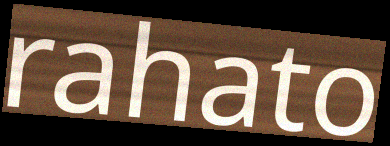
rahato